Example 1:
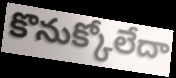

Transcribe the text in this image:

కొనుక్కోలేదా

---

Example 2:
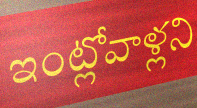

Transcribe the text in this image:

ఇంట్లోవాళ్లని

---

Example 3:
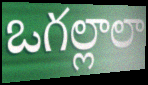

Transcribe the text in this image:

ఒగల్లాలా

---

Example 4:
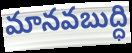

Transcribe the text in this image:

మానవబుద్ధి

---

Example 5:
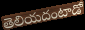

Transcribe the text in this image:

తెలియదంటాడో